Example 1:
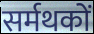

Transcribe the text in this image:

सर्मथकों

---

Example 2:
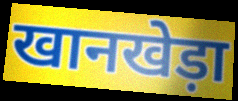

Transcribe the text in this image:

खानखेड़ा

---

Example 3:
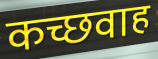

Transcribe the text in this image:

कच्छवाह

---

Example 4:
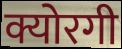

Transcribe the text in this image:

क्योरगी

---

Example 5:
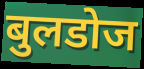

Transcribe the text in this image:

बुलडोज